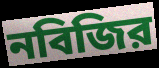
নবিজির